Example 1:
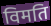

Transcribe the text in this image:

विमति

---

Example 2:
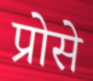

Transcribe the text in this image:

प्रोसे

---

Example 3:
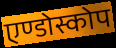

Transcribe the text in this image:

एण्डोस्कोप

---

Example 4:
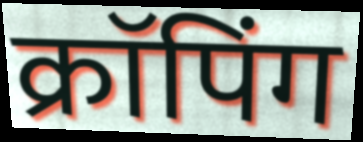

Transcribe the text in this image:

क्रॉपिंग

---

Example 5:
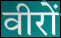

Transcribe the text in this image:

वीरों